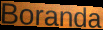
Boranda